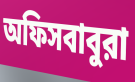
অফিসবাবুরা